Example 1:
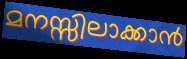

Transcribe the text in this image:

മനസ്സിലാക്കാൻ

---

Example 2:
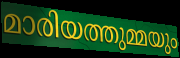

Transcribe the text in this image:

മാരിയത്തുമ്മയും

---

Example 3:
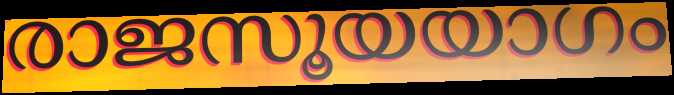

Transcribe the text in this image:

രാജസൂയയാഗം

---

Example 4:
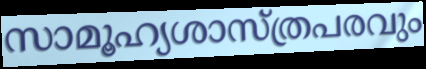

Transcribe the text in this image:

സാമൂഹ്യശാസ്ത്രപരവും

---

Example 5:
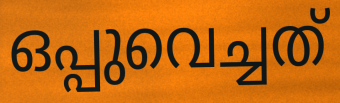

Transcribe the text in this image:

ഒപ്പുവെച്ചത്